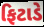
ફિટાડે